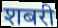
शबरी